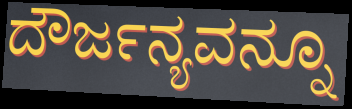
ದೌರ್ಜನ್ಯವನ್ನೂ